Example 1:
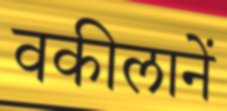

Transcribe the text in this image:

वकीलानें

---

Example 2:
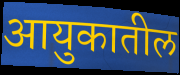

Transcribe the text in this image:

आयुकातील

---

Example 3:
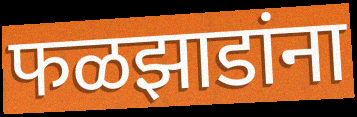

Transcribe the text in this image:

फळझाडांना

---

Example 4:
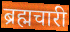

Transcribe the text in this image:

ब्रह्मचारी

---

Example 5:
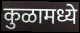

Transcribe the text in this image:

कुळामध्ये